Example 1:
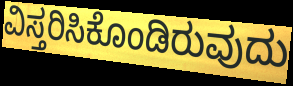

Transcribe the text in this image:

ವಿಸ್ತರಿಸಿಕೊಂಡಿರುವುದು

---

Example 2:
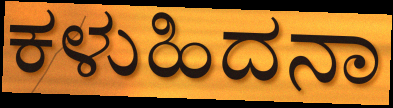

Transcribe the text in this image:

ಕಳುಹಿದನಾ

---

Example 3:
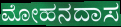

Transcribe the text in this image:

ಮೋಹನದಾಸ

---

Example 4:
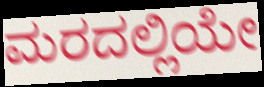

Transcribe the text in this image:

ಮರದಲ್ಲಿಯೇ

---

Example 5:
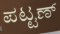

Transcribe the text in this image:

ಪಟ್ಟಣ್